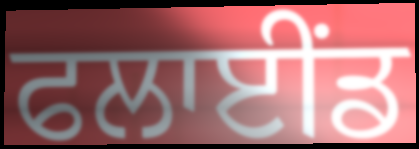
ਫਲਾਈਂਡ